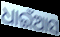
ଧାଇଁଆସ